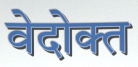
वेदोक्त